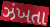
ઝંખતા